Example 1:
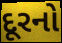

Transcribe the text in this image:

દૂરનો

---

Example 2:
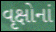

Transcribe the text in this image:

વૃક્ષોનાં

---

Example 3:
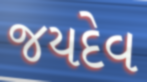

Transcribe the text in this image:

જયદેવ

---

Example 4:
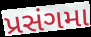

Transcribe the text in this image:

પ્રસંગમા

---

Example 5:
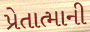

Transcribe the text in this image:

પ્રેતાત્માની